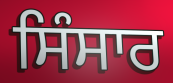
ਸਿੰਸਾਰ